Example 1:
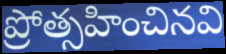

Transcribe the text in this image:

ప్రోత్సహించినవి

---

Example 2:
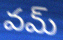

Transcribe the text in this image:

వమ్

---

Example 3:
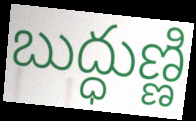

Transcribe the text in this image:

బుద్ధుణ్ణి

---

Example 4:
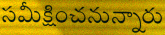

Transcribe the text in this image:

సమీక్షించనున్నారు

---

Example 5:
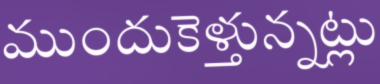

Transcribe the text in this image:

ముందుకెళ్తున్నట్లు